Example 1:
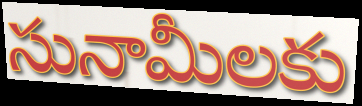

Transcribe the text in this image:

సునామీలకు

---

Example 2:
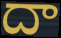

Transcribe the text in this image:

దా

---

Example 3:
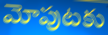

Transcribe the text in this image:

మోపుటకు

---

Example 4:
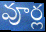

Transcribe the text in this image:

వూర్ల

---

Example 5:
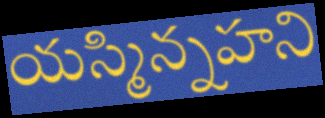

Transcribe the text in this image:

యస్మిన్నహని